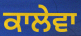
ਕਾਲੇਵਾ